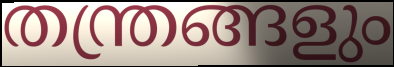
തന്ത്രങ്ങളും